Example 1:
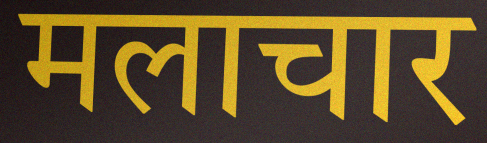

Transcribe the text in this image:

मलाचार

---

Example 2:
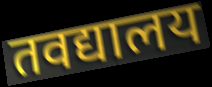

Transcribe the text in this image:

तवद्यालय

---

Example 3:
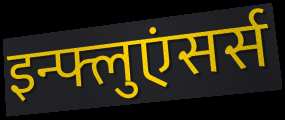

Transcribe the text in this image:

इन्फ्लुएंसर्स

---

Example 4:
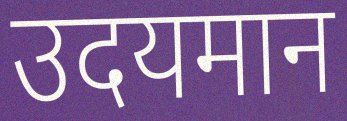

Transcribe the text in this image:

उदयमान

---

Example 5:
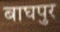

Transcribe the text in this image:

बाघपुर